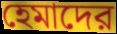
হেমাদের